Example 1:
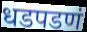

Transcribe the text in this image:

धडपडणं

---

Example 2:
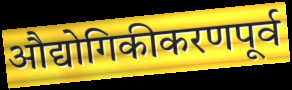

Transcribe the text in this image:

औद्योगिकीकरणपूर्व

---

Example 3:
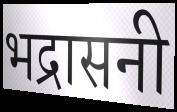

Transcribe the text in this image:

भद्रासनी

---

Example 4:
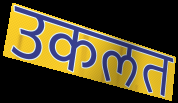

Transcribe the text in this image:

उकलत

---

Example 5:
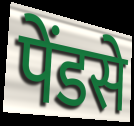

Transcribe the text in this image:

पेंडसे